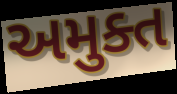
અમુક્ત